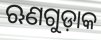
ଋଣଗୁଡ଼ାକ